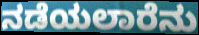
ನಡೆಯಲಾರೆನು